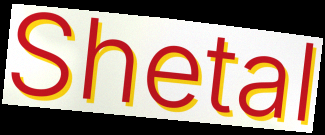
Shetal